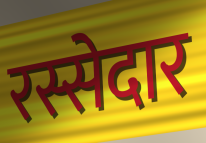
रस्सेदार